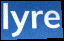
lyre